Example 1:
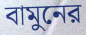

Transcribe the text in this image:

বামুনের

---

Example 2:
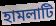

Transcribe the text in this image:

হামলাটি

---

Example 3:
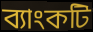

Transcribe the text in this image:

ব্যাংকটি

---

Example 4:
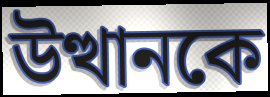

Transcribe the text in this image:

উত্থানকে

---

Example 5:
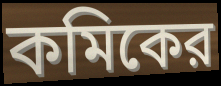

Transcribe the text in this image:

কমিকের